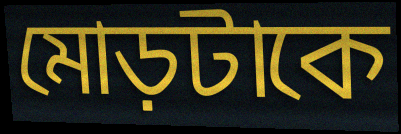
মোড়টাকে